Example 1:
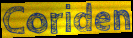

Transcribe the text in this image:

Coriden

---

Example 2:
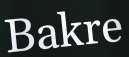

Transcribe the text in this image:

Bakre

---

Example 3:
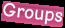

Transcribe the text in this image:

Groups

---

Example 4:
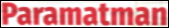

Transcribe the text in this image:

Paramatman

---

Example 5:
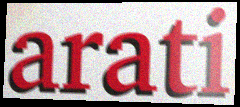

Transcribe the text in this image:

arati